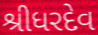
શ્રીધરદેવ